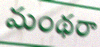
మంథరా